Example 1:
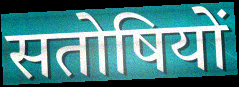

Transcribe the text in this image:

सतोषियों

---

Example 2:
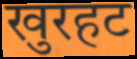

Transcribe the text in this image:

खुरहट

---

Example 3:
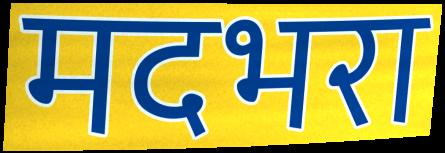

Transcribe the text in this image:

मदभरा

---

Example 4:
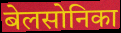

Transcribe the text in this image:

बेलसोनिका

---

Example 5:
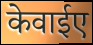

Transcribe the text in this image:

केवाईए